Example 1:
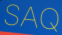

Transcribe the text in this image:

SAQ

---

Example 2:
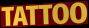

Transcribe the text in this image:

TATTOO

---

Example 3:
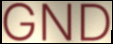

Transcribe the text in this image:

GND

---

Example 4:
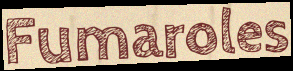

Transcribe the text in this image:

Fumaroles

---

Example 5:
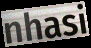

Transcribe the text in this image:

nhasi